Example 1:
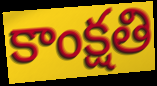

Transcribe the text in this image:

కాంక్షతి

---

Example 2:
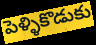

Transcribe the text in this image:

పెళ్ళికొడుకు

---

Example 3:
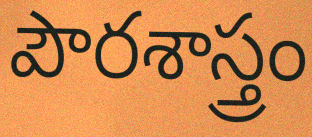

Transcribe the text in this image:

పౌరశాస్త్రం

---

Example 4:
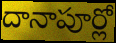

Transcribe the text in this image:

దానాపూర్లో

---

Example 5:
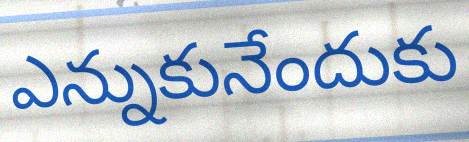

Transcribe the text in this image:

ఎన్నుకునేందుకు